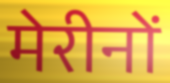
मेरीनों